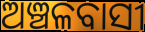
ଅଞ୍ଚଳବାସୀ